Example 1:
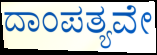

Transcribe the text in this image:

ದಾಂಪತ್ಯವೇ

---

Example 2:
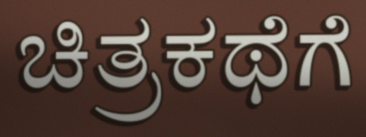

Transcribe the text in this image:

ಚಿತ್ರಕಥೆಗೆ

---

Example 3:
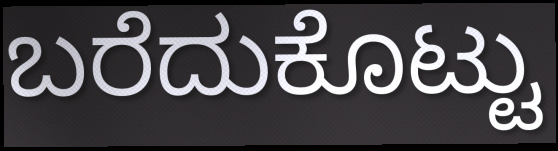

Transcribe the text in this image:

ಬರೆದುಕೊಟ್ಟು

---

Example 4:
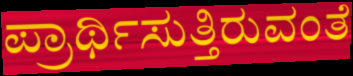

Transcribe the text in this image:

ಪ್ರಾರ್ಥಿಸುತ್ತಿರುವಂತೆ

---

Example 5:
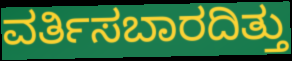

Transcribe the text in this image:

ವರ್ತಿಸಬಾರದಿತ್ತು